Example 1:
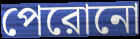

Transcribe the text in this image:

পেরোনো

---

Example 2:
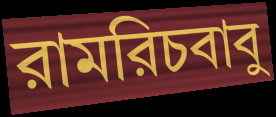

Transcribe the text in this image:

রামরিচবাবু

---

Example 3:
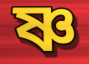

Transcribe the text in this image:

ষ্ণ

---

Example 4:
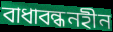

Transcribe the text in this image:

বাধাবন্ধনহীন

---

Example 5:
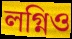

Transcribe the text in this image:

লগ্নিও